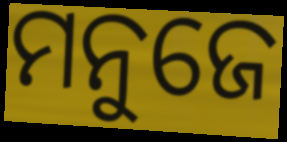
ମନୁଜେ